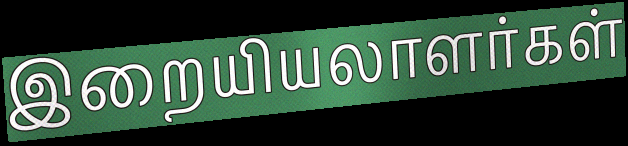
இறையியலாளர்கள்